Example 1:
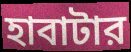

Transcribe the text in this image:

হাবাটার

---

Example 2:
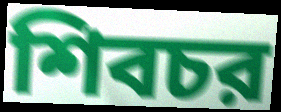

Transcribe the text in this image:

শিবচর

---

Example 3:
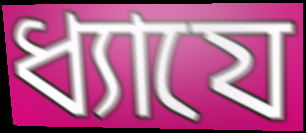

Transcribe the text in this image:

ধ্যাযে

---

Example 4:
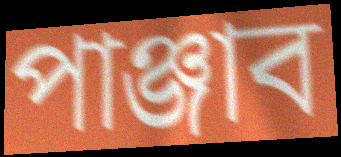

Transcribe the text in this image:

পাঞ্জাব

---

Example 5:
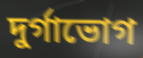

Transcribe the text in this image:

দুর্গাভোগ